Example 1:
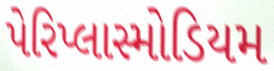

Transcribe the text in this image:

પેરિપ્લાસ્મોડિયમ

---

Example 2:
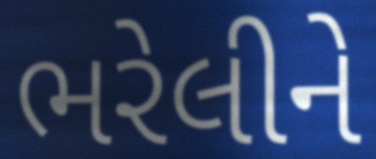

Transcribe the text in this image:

ભરેલીને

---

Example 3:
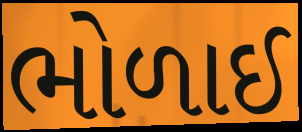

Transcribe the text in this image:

ભોળાઈ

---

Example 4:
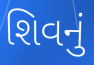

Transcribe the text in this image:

શિવનું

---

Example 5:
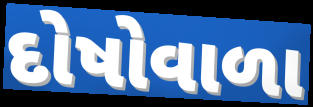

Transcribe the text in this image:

દોષોવાળા